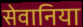
सेवानिया